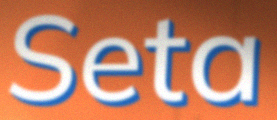
Seta